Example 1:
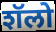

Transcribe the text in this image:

शॅलो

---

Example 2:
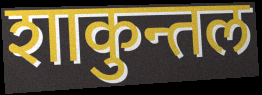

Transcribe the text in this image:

शाकुन्तल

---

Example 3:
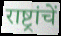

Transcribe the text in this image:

राष्ट्रांचें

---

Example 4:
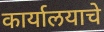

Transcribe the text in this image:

कार्यालयाचे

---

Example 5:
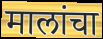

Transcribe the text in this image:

मालांचा